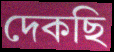
দেকছি